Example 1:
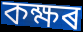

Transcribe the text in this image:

কক্ষৰ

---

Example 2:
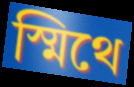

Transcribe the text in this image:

স্মিথে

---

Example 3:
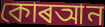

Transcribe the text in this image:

কোৰআন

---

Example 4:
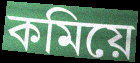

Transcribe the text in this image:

কমিয়ে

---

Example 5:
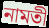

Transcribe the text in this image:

নামতী